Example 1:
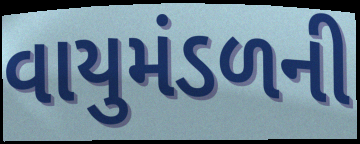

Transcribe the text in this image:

વાયુમંડળની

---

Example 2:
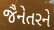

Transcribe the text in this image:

જૈનેતરને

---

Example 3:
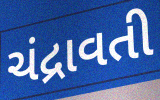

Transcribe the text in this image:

ચંદ્રાવતી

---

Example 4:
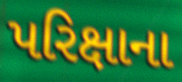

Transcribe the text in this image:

પરિક્ષાના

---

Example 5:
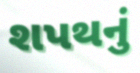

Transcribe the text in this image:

શપથનું